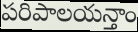
పరిపాలయన్తాం